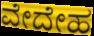
ವೇದೇಹ